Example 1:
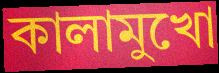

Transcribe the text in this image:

কালামুখো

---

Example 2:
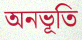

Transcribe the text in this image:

অনভূতি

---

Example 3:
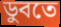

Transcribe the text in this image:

ডুবতে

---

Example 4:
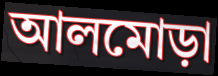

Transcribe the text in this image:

আলমোড়া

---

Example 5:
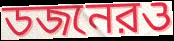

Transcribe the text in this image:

ডজনেরও